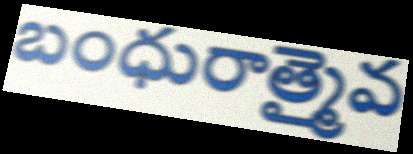
బంధురాత్మైవ